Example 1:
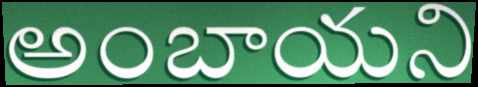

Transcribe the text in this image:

అంబాయని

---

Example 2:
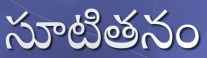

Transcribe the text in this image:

సూటితనం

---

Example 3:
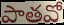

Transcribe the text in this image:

పాతవో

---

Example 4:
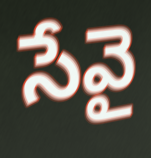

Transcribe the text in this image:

సేవై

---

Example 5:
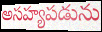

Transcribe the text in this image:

అసహ్యపడును